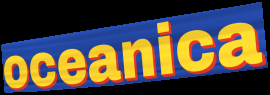
oceanica